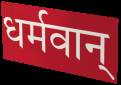
धर्मवान्